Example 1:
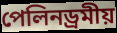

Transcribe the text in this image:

পেলিনড্ৰমীয়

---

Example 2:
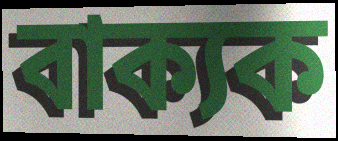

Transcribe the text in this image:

বাক্যক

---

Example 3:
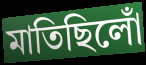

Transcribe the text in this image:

মাতিছিলোঁ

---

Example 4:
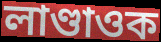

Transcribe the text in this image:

লাণ্ডাওক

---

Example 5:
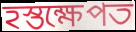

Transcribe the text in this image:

হস্তক্ষেপত